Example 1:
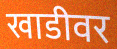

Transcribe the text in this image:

खाडीवर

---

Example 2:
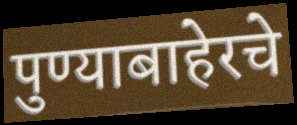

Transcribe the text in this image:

पुण्याबाहेरचे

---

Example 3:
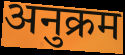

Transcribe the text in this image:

अनुक्रम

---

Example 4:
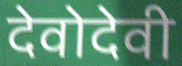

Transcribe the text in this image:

देवोदेवी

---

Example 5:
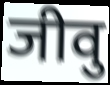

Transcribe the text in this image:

जीवु